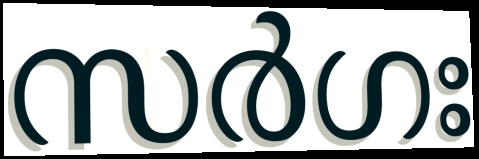
സർഗഃ